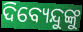
ଦିବ୍ୟେନ୍ଦୁଙ୍କୁ